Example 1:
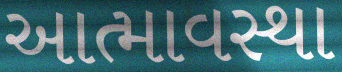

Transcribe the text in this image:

આત્માવસ્થા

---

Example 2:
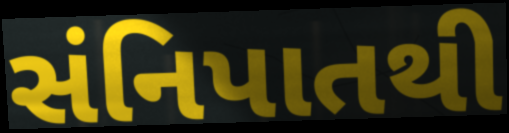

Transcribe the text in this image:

સંનિપાતથી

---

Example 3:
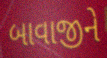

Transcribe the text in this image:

બાવાજીને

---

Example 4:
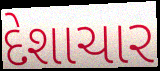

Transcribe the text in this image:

દેશાચાર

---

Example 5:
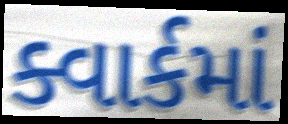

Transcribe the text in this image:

ક્વાર્કમાં